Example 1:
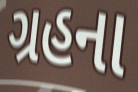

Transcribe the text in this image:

ગ્રહના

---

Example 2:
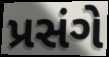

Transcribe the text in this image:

પ્રસંગે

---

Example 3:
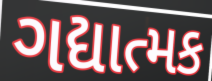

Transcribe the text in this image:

ગદ્યાત્મક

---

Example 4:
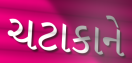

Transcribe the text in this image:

ચટાકાને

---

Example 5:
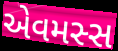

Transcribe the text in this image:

એવમસ્સ